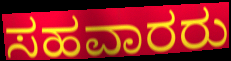
ಸಹವಾರರು